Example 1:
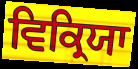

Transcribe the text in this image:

ਵਿਕ੍ਰਿਯਾ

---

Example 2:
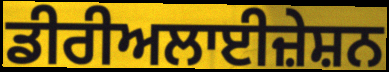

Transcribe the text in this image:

ਡੀਰੀਅਲਾਈਜ਼ੇਸ਼ਨ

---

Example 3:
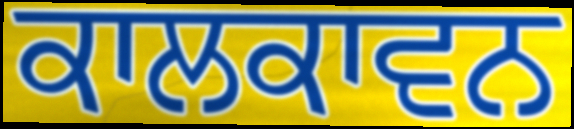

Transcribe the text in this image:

ਕਾਲਕਾਵਨ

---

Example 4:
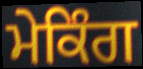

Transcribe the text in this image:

ਮੇਕਿੰਗ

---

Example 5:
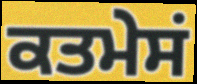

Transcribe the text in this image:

ਕਤਮੇਸਂ